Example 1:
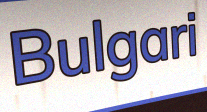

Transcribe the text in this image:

Bulgari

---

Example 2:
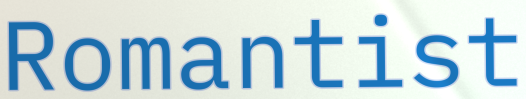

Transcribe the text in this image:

Romantist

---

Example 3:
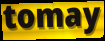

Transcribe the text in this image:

tomay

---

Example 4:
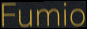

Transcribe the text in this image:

Fumio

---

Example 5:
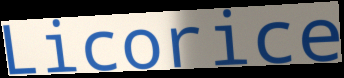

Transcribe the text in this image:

Licorice